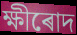
ক্ষীৰোদ